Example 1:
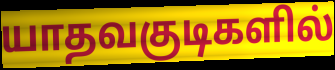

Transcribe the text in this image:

யாதவகுடிகளில்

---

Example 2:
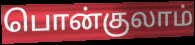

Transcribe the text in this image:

பொன்குலாம்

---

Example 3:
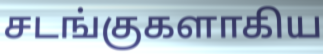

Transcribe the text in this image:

சடங்குகளாகிய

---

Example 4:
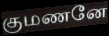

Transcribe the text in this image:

குமணனே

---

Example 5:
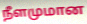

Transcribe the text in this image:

நீளமுமான